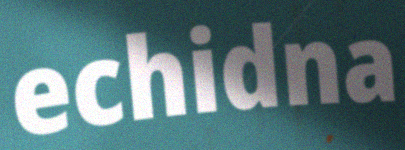
echidna